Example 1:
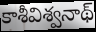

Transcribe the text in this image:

కాశీవిశ్వనాథ్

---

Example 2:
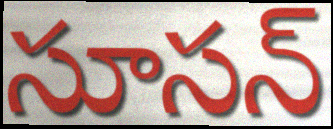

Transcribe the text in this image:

సూసన్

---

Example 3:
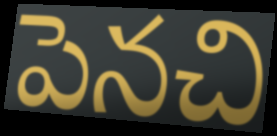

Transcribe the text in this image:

పెనచి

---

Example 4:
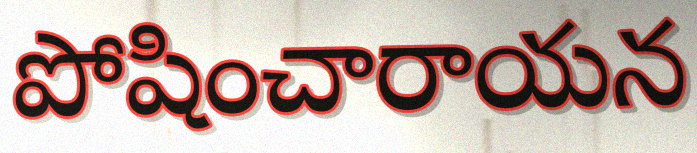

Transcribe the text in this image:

పోషించారాయన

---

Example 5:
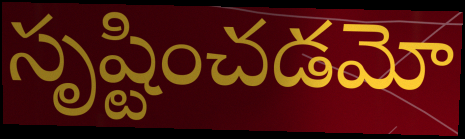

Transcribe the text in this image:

సృష్టించడమో